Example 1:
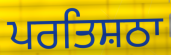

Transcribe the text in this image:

ਪਰਤਿਸ਼ਠਾ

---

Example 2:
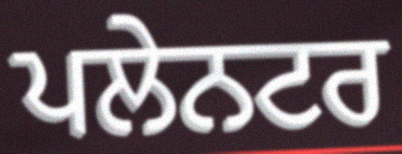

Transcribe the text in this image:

ਪਲੇਨਟਰ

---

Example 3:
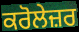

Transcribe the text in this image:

ਕਰੋਲੇਜ਼ਰ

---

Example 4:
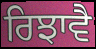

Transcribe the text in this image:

ਰਿਝਾਵੈ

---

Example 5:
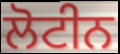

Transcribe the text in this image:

ਲੋਟੀਨ